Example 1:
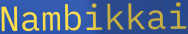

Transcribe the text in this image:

Nambikkai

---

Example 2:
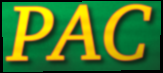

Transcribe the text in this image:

PAC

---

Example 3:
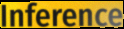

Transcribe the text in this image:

Inference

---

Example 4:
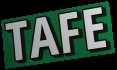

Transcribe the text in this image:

TAFE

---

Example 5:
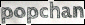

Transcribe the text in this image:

popchan